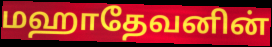
மஹாதேவனின்